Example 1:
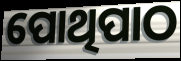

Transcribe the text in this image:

ପୋଥିପାଠ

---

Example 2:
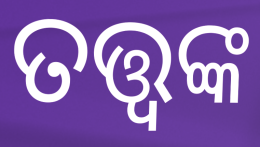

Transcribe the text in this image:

ତତ୍ତ୍ବଙ୍କ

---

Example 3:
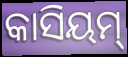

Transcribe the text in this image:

କାସିୟମ୍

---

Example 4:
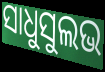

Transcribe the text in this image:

ସାଧୁସୁଲଭ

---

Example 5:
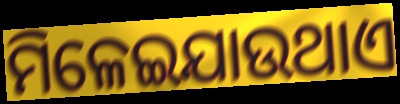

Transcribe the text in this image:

ମିଳେଇଯାଉଥାଏ